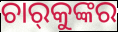
ଚାର୍‌କୁଙ୍କର